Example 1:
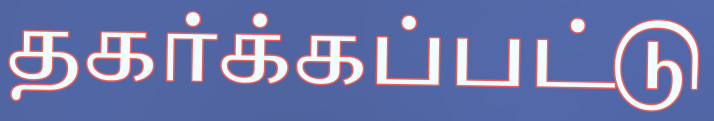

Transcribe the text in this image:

தகர்க்கப்பட்டு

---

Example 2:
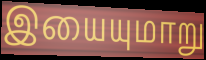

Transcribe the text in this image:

இயையுமாறு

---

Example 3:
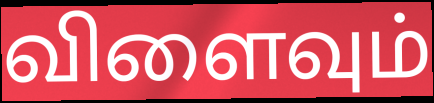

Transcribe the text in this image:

விளைவும்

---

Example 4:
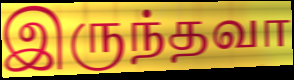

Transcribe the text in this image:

இருந்தவா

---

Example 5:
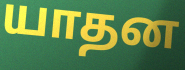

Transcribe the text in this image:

யாதன